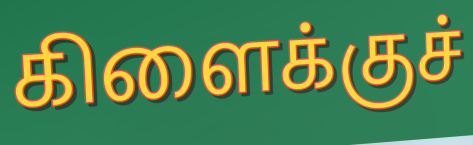
கிளைக்குச்